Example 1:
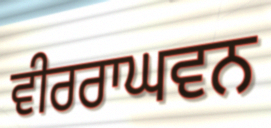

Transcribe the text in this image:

ਵੀਰਰਾਘਵਨ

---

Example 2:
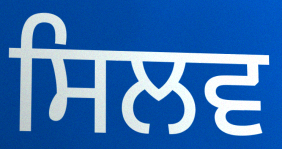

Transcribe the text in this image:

ਸਿਲਵ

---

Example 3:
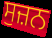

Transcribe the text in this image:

ਸੁਜ਼ਨ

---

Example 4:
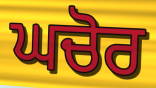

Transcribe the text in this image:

ਘਚੋਰ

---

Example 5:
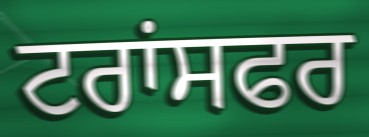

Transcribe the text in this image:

ਟਰਾਂਸਫਰ